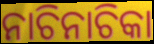
ନାଚିନାଚିକା